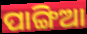
ପାଙ୍ଗିଆ